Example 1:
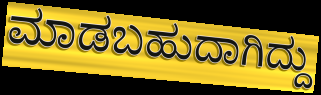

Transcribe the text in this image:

ಮಾಡಬಹುದಾಗಿದ್ದು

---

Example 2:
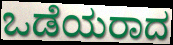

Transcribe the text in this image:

ಒಡೆಯರಾದ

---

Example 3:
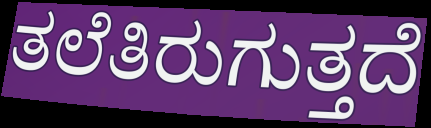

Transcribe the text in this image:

ತಲೆತಿರುಗುತ್ತದೆ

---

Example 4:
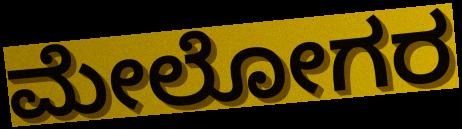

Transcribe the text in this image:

ಮೇಲೋಗರ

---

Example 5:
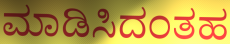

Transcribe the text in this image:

ಮಾಡಿಸಿದಂತಹ